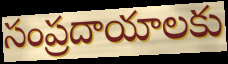
సంప్రదాయాలకు